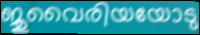
ജുവൈരിയയോടു